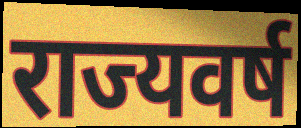
राज्यवर्ष